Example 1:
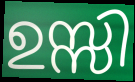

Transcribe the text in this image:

ഉസ്സി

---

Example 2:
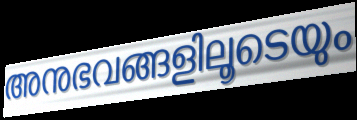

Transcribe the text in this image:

അനുഭവങ്ങളിലൂടെയും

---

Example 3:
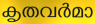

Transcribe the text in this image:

കൃതവർമാ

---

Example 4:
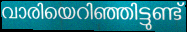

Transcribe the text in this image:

വാരിയെറിഞ്ഞിട്ടുണ്ട്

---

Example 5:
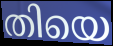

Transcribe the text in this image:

തിയെ